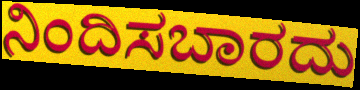
ನಿಂದಿಸಬಾರದು